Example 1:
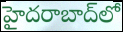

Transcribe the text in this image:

హైదరాబాద్‌లో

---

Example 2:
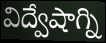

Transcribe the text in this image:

విద్వేషాగ్ని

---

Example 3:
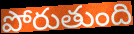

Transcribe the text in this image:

పోరుతుంది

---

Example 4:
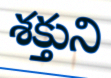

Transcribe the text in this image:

శక్తుని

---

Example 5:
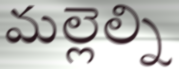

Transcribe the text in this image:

మల్లెల్ని